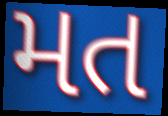
મત